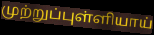
முற்றுப்புள்ளியாய்